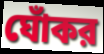
ঘোঁকর